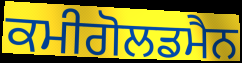
ਕਮੀਗੋਲਡਮੈਨ